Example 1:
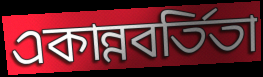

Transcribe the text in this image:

একান্নবর্তিতা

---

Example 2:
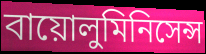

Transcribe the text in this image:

বায়োলুমিনিসেন্স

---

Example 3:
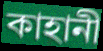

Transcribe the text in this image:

কাহানী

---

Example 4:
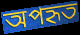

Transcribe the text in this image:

অপহৃত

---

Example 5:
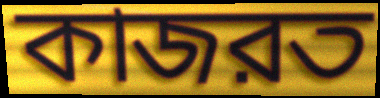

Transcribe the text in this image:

কাজরত